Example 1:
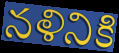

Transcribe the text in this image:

నళినికి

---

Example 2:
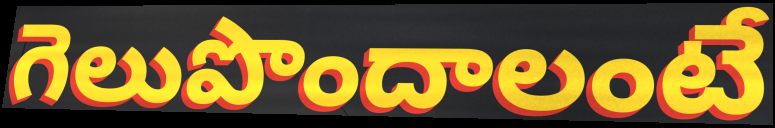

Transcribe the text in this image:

గెలుపొందాలంటే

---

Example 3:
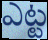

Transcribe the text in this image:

ఎట్ట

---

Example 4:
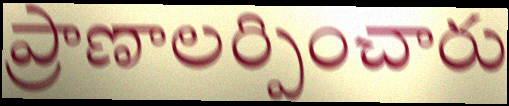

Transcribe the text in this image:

ప్రాణాలర్పించారు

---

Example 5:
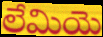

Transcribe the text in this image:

లేమియె